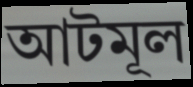
আটমূল